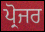
ਪ੍ਰੋਜਰ